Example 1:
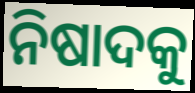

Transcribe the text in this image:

ନିଷାଦକୁ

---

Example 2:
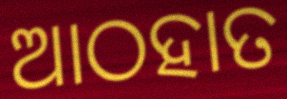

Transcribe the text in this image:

ଆଠହାତ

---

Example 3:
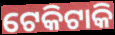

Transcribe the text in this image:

ଟେକିଟାକି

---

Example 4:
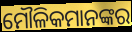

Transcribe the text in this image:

ମୌଳିକମାନଙ୍କର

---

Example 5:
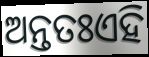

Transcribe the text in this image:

ଅନ୍ତତଃଏହି